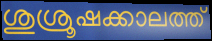
ശുശ്രൂഷക്കാലത്ത്